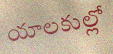
యాలకుల్లో